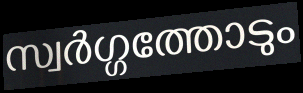
സ്വർഗ്ഗത്തോടും